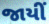
જાયીં